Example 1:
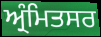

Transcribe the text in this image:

ਅ੍ਰੰਮਿਤਸਰ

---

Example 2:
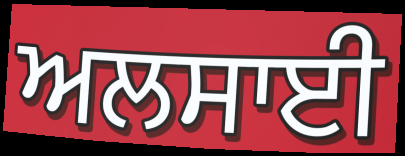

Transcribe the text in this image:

ਅਲਸਾਈ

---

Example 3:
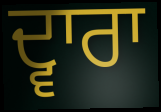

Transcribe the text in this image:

ਦ੍ਵਾਰਾ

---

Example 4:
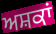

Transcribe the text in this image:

ਅਸ਼ਕਾਂ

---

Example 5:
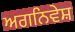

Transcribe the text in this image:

ਅਗਨਿਵੇਸ਼